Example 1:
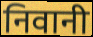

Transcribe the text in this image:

निवानी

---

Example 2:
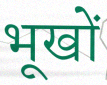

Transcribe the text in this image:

भूखों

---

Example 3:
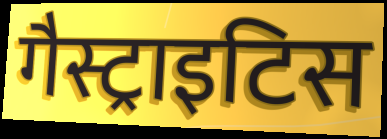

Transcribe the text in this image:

गैस्ट्राइटिस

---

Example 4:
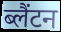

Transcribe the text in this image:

ब्लैंटन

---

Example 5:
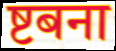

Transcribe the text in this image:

ष्टबना